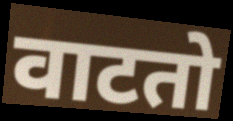
वाटतो